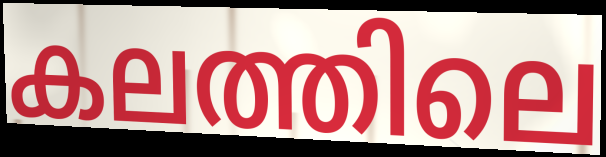
കലത്തിലെ